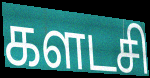
களடசி